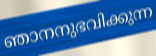
ഞാനനുഭവിക്കുന്ന